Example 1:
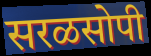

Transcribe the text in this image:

सरळसोपी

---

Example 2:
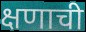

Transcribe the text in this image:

क्षणाची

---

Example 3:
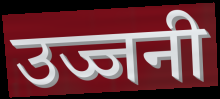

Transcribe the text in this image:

उज्जनी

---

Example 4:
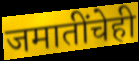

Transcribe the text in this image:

जमातींचेही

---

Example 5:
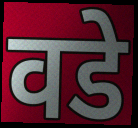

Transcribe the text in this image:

वडे